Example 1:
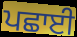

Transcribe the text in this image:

ਪਛਾਈ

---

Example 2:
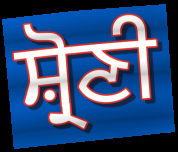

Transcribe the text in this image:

ਸ਼੍ਰੋਣੀ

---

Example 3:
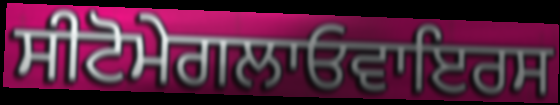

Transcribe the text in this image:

ਸੀਟੋਮੇਗਲਾਓਵਾਇਰਸ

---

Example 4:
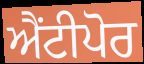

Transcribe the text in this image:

ਐਂਟੀਪੋਰ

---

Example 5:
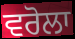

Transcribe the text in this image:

ਵਰੋਲਾ